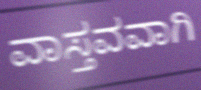
ವಾಸ್ತವವಾಗಿ